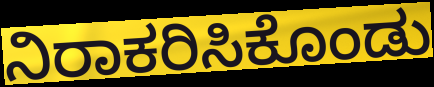
ನಿರಾಕರಿಸಿಕೊಂಡು